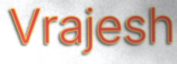
Vrajesh